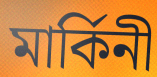
মার্কিনী